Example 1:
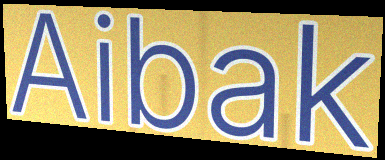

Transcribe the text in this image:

Aibak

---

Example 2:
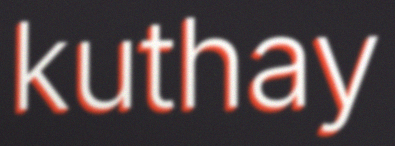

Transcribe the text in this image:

kuthay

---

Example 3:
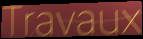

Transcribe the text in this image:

Travaux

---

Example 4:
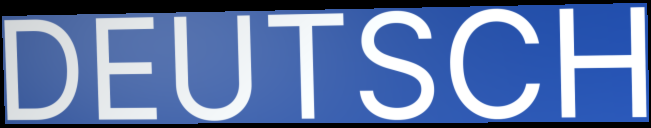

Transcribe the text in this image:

DEUTSCH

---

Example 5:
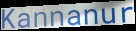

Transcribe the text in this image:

Kannanur